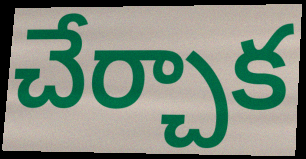
చేర్చాక